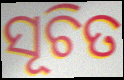
ସୂଚିତ